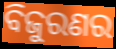
ବିଜୁରଣର